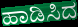
ಹಾಡಿಸಿದ